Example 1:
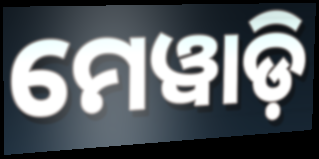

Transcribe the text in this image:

ମେୱାଡ଼ି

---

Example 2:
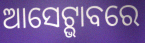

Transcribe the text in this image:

ଆସେଟ୍ଭାବରେ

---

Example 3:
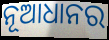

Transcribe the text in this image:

ନୂଆଧାନର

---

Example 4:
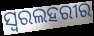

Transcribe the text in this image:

ସ୍ୱରଲହରୀର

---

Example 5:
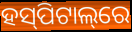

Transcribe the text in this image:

ହସ୍‌ପିଟାଲ୍‌ରେ